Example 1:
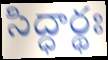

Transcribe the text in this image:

సిద్ధార్థః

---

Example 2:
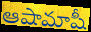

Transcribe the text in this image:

ఆషామాషీ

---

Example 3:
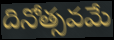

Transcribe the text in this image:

దినోత్సవమే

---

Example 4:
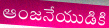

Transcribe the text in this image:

ఆంజనేయుడికి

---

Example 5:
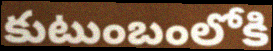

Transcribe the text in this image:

కుటుంబంలోకి